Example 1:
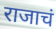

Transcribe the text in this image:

राजाचं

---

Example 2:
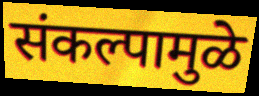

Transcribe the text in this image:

संकल्पामुळे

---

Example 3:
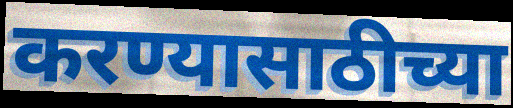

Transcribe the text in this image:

करण्यासाठीच्या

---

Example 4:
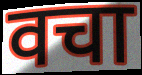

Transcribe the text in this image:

वचा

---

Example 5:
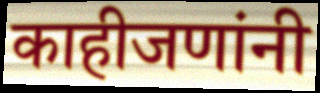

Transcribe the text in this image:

काहीजणांनी